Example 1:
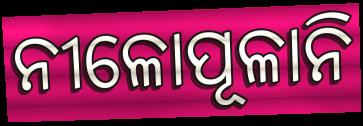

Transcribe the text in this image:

ନୀଳୋପୂଳାନି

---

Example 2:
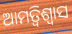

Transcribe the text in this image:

ଆମତ୍ବିଶ୍ୱାସ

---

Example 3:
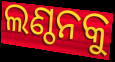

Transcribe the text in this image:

ଲଣ୍ଠନକୁ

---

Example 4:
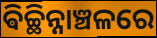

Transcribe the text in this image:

ଵିଚ୍ଛିନ୍ନାଞ୍ଚଳରେ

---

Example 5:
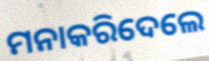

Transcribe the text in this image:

ମନାକରିଦେଲେ